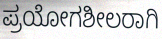
ಪ್ರಯೋಗಶೀಲರಾಗಿ